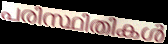
പരിസ്ഥിതികൾ